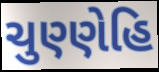
ચુણ્ણેહિ